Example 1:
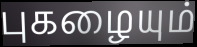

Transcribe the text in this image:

புகழையும்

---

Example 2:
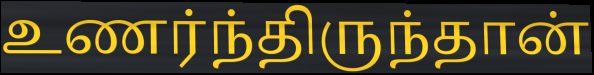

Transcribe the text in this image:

உணர்ந்திருந்தான்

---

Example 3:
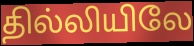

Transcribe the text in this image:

தில்லியிலே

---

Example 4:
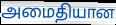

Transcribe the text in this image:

அமைதியான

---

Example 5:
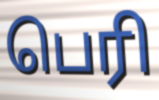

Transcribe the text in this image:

பெரி